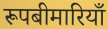
रूपबीमारियाँ